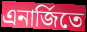
এনার্জিতে